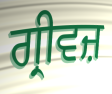
ਗ੍ਰੀਵਜ਼